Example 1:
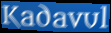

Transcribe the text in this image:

Kadavul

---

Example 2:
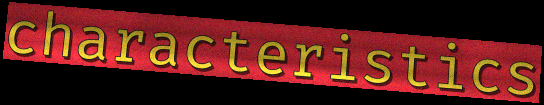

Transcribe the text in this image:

characteristics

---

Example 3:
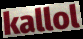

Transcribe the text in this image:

kallol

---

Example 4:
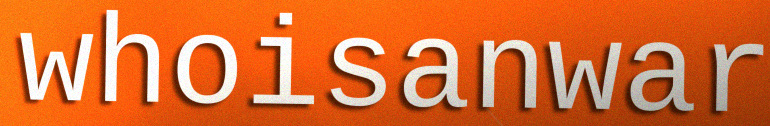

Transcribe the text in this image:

whoisanwar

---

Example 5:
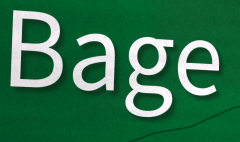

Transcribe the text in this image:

Bage